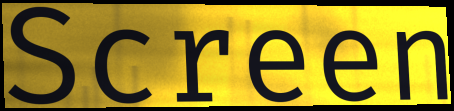
Screen